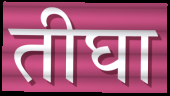
तीघा